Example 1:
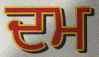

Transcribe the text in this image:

ਦਮ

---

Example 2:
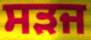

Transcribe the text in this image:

ਸੜਜ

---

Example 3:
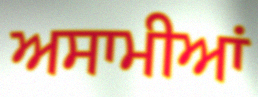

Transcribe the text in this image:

ਅਸਾਮੀਆਂ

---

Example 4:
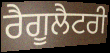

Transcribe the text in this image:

ਰੈਗੂਲੈਟਰੀ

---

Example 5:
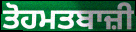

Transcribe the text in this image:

ਤੋਹਮਤਬਾਜ਼ੀ